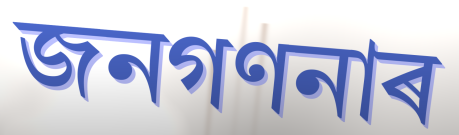
জনগণনাৰ